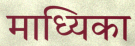
माध्यिका